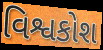
વિશ્વકોશ